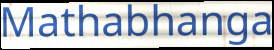
Mathabhanga